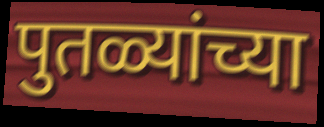
पुतळ्यांच्या